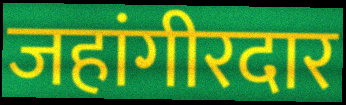
जहांगीरदार